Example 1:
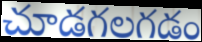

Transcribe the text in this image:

చూడగలగడం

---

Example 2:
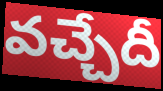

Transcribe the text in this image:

వచ్చేదీ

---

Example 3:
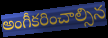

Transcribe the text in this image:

అంగీకరించాల్సిన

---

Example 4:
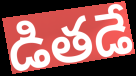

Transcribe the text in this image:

డితడే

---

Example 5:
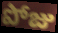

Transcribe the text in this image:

పోజు